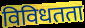
विविधतता